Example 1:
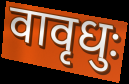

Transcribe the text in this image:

वावृधुः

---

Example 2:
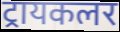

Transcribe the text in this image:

ट्रायकलर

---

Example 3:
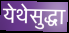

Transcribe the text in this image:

येथेसुद्धा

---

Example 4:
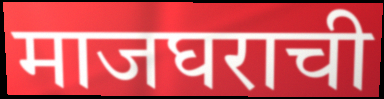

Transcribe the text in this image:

माजघराची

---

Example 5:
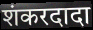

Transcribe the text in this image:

शंकरदादा